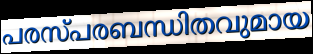
പരസ്പരബന്ധിതവുമായ